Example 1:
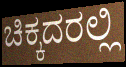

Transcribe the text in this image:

ಚಿಕ್ಕದರಲ್ಲಿ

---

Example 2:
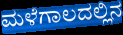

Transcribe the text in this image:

ಮಳೆಗಾಲದಲ್ಲಿನ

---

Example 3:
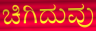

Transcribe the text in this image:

ಚಿಗಿದುವು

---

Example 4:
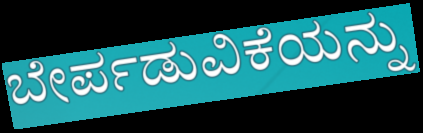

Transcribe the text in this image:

ಬೇರ್ಪಡುವಿಕೆಯನ್ನು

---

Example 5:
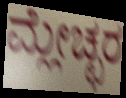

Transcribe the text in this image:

ಮ್ಲೇಚ್ಛರ